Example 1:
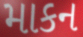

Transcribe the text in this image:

માકન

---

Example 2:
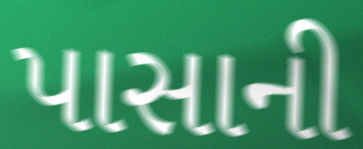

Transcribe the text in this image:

પાસાની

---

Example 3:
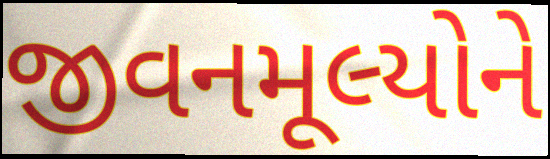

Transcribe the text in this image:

જીવનમૂલ્યોને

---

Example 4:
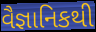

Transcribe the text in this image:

વૈજ્ઞાનિકથી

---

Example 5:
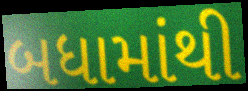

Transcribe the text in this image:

બધામાંથી